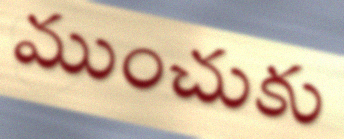
ముంచుకు